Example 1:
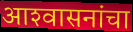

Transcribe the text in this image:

आश्वासनांचा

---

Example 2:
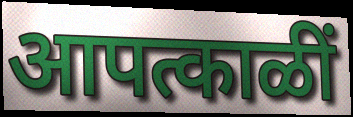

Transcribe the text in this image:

आपत्काळीं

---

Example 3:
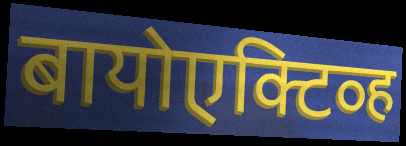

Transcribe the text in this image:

बायोएक्टिव्ह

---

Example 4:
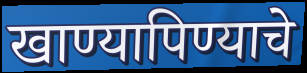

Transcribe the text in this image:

खाण्यापिण्याचे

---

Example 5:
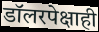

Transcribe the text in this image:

डॉलरपेक्षाही